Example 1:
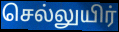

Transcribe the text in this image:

செல்லுயிர்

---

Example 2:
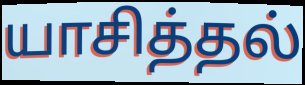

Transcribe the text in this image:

யாசித்தல்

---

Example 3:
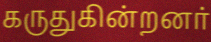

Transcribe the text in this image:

கருதுகின்றனர்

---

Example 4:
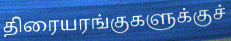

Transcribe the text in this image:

திரையரங்குகளுக்குச்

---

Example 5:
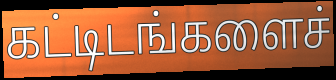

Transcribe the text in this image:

கட்டிடங்களைச்